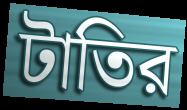
টাতির